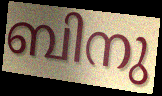
ബിനു